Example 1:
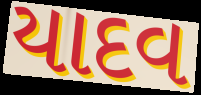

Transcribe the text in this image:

યાદવ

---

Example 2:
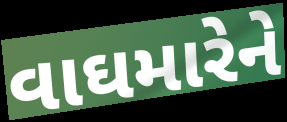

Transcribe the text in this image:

વાઘમારેને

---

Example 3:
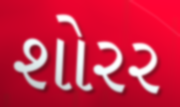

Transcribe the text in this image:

શોરર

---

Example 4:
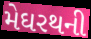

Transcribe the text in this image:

મેઘરથની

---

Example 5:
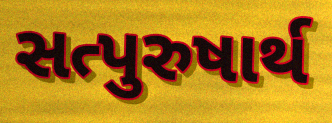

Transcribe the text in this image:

સત્પુરુષાર્થ